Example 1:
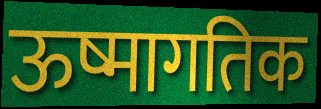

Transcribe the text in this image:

ऊष्मागतिक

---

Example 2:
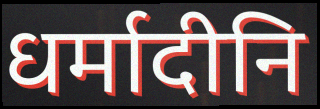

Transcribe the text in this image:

धर्मादीनि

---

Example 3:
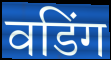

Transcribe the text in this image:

वडिंग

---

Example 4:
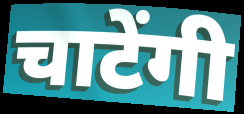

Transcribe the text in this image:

चाटेंगी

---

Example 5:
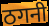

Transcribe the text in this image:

ठगनी